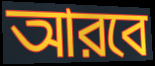
আরবে